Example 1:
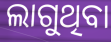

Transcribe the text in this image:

ଲାଗୁଥିବା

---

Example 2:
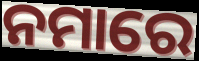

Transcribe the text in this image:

ନମାରେ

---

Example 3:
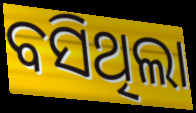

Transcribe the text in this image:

ବସିଥିଲା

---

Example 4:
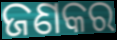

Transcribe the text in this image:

ଜଣକର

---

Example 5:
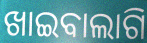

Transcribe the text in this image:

ଖାଇବାଲାଗି